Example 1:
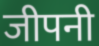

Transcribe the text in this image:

जीपनी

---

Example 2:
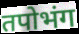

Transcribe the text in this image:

तपोभंग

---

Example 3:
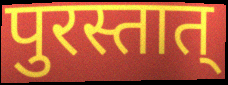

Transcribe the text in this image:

पुरस्तात्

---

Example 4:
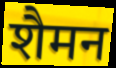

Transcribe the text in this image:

शैमन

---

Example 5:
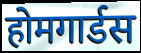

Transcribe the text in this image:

होमगार्डस